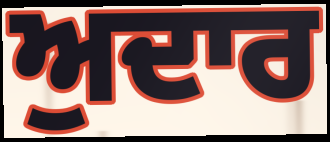
ਅੁਦਾਰ